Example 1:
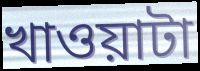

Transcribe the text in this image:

খাওয়াটা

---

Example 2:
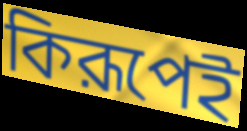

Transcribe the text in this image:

কিরূপেই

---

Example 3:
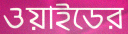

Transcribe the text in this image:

ওয়াইডের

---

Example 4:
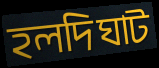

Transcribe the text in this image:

হলদিঘাট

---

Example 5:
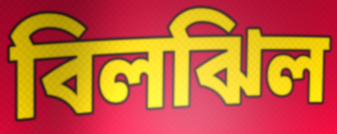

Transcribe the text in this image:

বিলঝিল